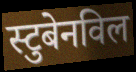
स्टुबेनविल